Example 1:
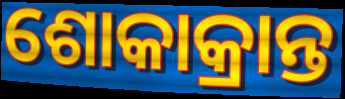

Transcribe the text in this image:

ଶୋକାକ୍ରାନ୍ତ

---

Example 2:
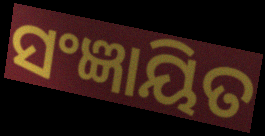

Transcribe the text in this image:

ସଂଜ୍ଞାୟିତ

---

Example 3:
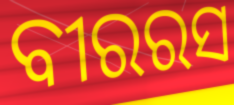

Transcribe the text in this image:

ବୀରରସ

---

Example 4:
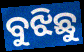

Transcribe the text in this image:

ବୁଝିଛୁ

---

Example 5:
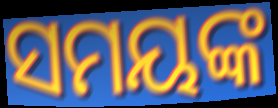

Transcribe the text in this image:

ସମୟଙ୍କ